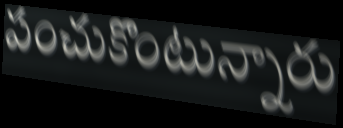
పంచుకొంటున్నారు